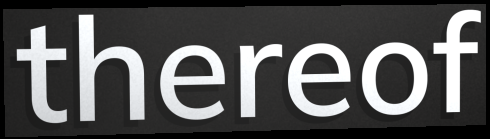
thereof